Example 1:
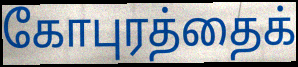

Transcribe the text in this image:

கோபுரத்தைக்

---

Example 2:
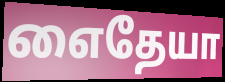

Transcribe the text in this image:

எைதேயா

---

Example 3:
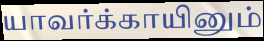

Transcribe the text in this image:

யாவர்க்காயினும்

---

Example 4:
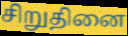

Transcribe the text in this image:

சிறுதினை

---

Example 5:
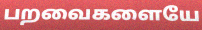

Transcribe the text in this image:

பறவைகளையே